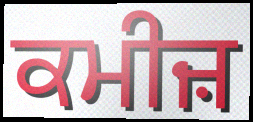
ਕਮੀਜ਼